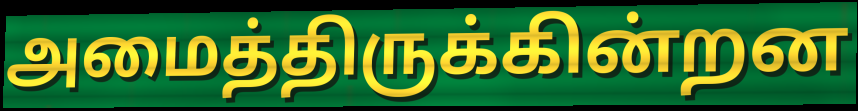
அமைத்திருக்கின்றன